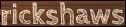
rickshaws